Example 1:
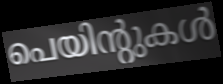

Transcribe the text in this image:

പെയിന്റുകൾ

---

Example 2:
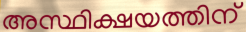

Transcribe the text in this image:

അസ്ഥിക്ഷയത്തിന്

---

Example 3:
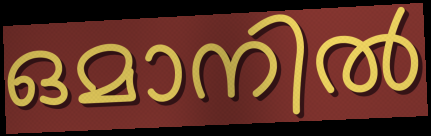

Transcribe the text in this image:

ഒമാനിൽ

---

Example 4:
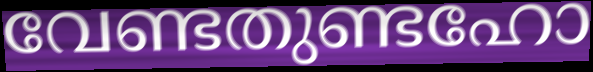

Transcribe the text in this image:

വേണ്ടതുണ്ടഹോ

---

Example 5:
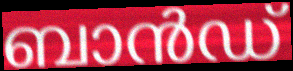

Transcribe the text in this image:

ബാൻഡ്